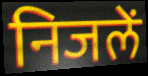
निजलें